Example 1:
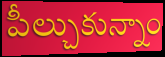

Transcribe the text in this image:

పీల్చుకున్నాం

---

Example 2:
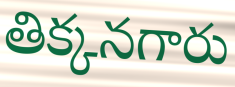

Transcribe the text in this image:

తిక్కనగారు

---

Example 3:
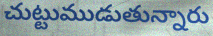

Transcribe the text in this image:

చుట్టుముడుతున్నారు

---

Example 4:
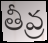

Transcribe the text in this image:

తీవ్ర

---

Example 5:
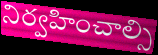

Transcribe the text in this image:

నిర్వహించాల్సి